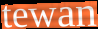
tewan